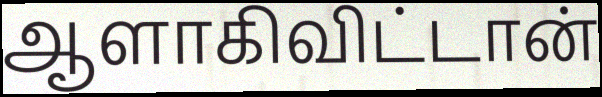
ஆளாகிவிட்டான்